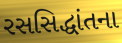
રસસિદ્ધાંતના